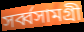
সর্ব্বসামগ্রী